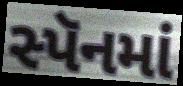
સ્પૅનમાં